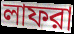
লাফরা